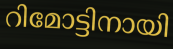
റിമോട്ടിനായി